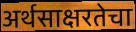
अर्थसाक्षरतेचा